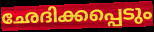
ഛേദിക്കപ്പെടും